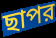
ছাপর